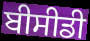
ਬੀਸੀਡੀ